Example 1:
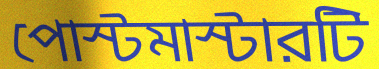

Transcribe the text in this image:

পোস্টমাস্টারটি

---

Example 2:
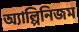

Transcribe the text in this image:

অ্যাল্পিনিজম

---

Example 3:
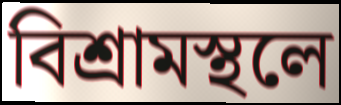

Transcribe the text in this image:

বিশ্রামস্থলে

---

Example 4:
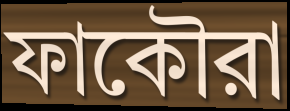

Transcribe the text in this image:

ফাকৌরা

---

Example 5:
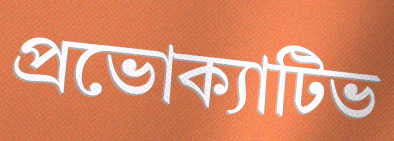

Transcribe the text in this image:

প্রভোক্যাটিভ